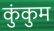
कुंकुम